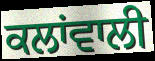
ਕਲਾਂਵਾਲੀ